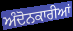
ਅੰਦੋਨਕਾਰੀਆਂ